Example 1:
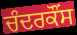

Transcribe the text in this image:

ਚੰਦਰਕੌਂਸ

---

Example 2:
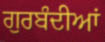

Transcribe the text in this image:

ਗੁਰਬੰਦੀਆਂ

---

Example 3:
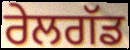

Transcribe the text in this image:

ਰੇਲਗੱਡ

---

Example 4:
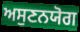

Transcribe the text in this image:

ਅਸੁਣਨਯੋਗ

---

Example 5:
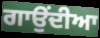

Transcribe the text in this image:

ਗਾਉਂਦੀਆ